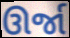
ઊર્જા